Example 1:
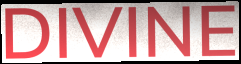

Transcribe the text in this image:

DIVINE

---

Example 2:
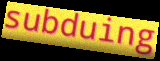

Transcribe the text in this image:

subduing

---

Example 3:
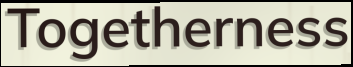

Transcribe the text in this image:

Togetherness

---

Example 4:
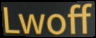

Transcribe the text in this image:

Lwoff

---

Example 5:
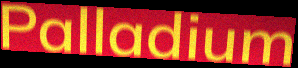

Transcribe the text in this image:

Palladium